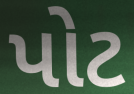
પોટ